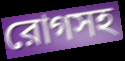
রোগসহ